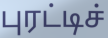
புரட்டிச்